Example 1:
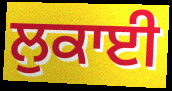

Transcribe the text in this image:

ਲੁਕਾਈ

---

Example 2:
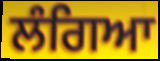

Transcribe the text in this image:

ਲੰਗਿਆ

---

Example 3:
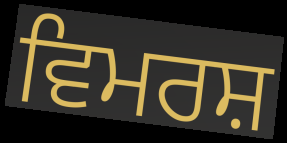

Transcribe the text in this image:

ਵਿਮਰਸ਼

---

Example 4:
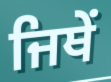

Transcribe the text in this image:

ਜਿਥੇਂ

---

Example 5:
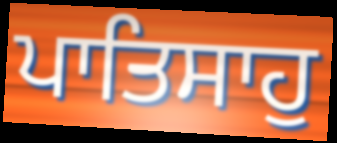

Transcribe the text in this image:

ਪਾਤਿਸਾਹੁ